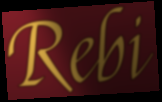
Rebi